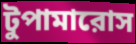
টুপামারোস